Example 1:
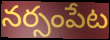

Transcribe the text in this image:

నర్సంపేట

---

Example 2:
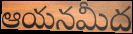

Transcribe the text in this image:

ఆయనమీద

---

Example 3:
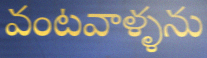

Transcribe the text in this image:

వంటవాళ్ళను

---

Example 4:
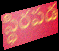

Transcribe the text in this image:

స్థిరపడ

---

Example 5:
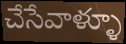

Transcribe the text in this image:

చేసేవాళ్ళూ